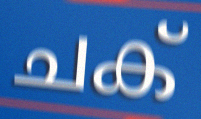
ചക്